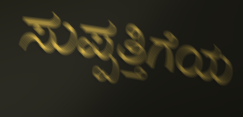
ಸುಪ್ಪತ್ತಿಗೆಯ